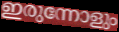
ഇരുന്നോളും